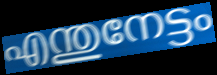
എന്തുനേട്ടം